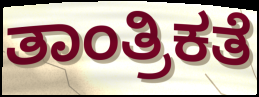
ತಾಂತ್ರಿಕತೆ